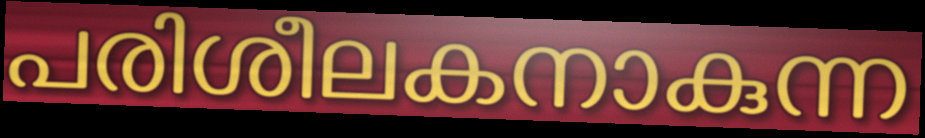
പരിശീലകനാകുന്ന